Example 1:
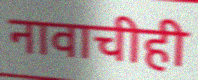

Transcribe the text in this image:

नावाचीही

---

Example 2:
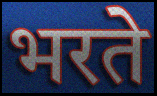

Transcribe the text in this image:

भरते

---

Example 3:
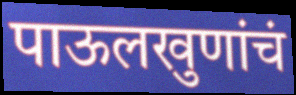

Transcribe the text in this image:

पाऊलखुणांचं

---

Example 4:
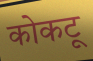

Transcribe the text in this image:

कोकटू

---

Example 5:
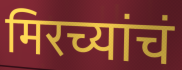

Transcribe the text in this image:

मिरच्यांचं